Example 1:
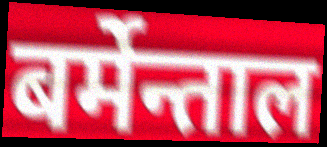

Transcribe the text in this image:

बर्मेन्ताल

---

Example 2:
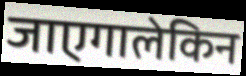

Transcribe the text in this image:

जाएगालेकिन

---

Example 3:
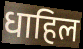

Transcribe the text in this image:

धाहिल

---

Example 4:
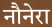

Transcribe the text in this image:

नौनेरा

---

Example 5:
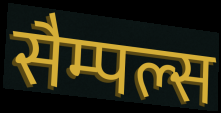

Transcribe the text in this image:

सैम्‍पल्‍स